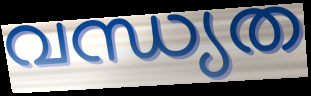
വന്ധ്യത